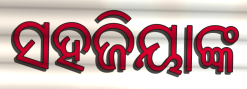
ସହଜିୟାଙ୍କ